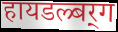
हायडल्बर्ग